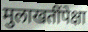
मुलाखतींपेक्षा